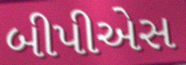
બીપીએસ